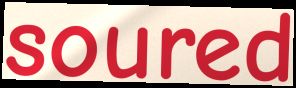
soured